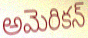
అమెరికన్